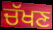
ਚੱਖਣ